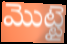
మొట్టై